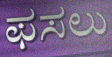
ಫಸಲು